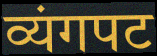
व्यंगपट